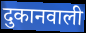
दुकानवाली